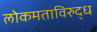
लोकमताविरुद्ध